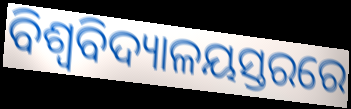
ବିଶ୍ୱବିଦ୍ୟାଳୟସ୍ତରରେ